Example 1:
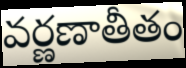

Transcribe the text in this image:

వర్ణణాతీతం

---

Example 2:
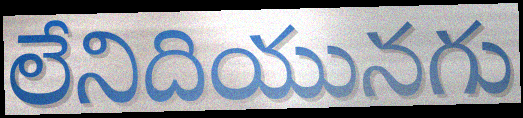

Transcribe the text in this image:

లేనిదియునగు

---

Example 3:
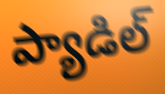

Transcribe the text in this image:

ప్యాడిల్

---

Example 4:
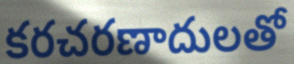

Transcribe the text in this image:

కరచరణాదులతో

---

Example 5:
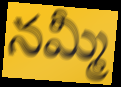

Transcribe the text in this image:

నమ్మీ